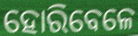
ହୋରିବେଳେ